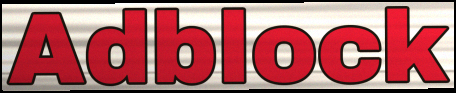
Adblock